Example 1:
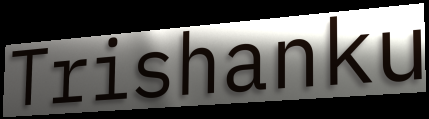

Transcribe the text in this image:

Trishanku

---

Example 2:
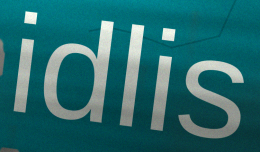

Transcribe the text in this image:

idlis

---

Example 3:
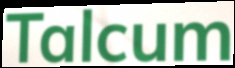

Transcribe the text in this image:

Talcum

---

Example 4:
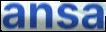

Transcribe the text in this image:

ansa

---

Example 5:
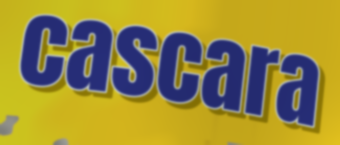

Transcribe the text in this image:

cascara